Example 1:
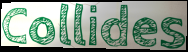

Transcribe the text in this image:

Collides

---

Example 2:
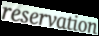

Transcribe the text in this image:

reservation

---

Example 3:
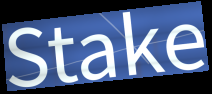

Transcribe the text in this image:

Stake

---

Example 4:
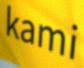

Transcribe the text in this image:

kami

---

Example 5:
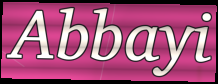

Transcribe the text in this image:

Abbayi